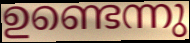
ഉണ്ടെന്നു